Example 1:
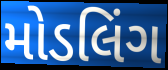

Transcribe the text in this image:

મોડલિંગ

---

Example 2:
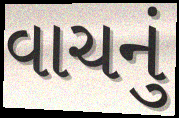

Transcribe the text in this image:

વાચનું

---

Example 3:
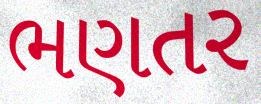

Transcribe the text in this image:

ભણતર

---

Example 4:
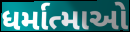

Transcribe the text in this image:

ધર્માત્માઓ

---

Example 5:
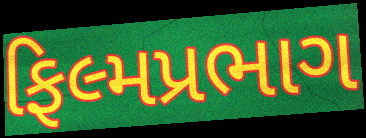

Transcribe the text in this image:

ફિલ્મપ્રભાગ